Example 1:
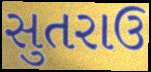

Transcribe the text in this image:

સુતરાઉ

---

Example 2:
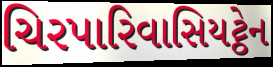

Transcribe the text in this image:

ચિરપારિવાસિયટ્ઠેન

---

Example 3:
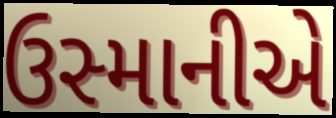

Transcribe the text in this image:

ઉસ્માનીએ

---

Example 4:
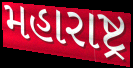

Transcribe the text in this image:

મહારાષ્ટ્ર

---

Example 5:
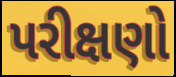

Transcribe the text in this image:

પરીક્ષણો